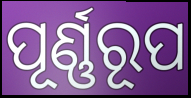
ପୂର୍ଣ୍ଣରୂପ